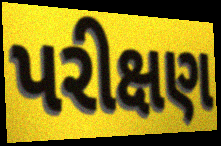
પરીક્ષણ